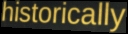
historically